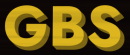
GBS